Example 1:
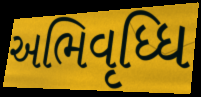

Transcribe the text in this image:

અભિવૃધ્ધિ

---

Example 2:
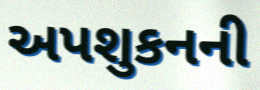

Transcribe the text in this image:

અપશુકનની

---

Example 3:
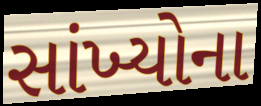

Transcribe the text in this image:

સાંખ્યોના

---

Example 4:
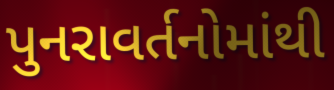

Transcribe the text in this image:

પુનરાવર્તનોમાંથી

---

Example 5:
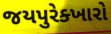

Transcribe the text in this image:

જયપુરેક્ખારો